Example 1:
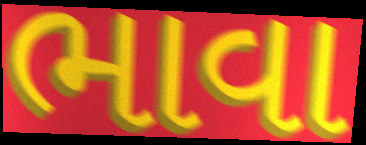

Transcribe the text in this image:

ભાવા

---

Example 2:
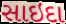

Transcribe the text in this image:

સાઇદા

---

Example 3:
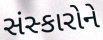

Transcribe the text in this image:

સંસ્કારોને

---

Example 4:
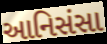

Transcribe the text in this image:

આનિસંસા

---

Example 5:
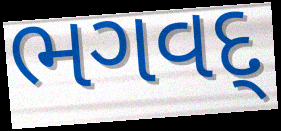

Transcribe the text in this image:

ભગવદ્